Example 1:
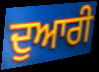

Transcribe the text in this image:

ਦੁਆਰੀ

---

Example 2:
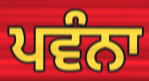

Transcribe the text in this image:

ਪਵੰਨਾ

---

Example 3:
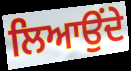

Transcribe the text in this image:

ਲਿਆਉਂਦੇ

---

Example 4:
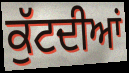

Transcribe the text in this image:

ਕੁੱਟਦੀਆਂ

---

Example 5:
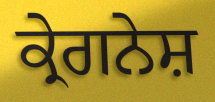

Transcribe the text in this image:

ਕ੍ਰੇਗਨੇਸ਼